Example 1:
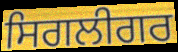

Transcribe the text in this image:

ਸਿਗਲੀਗਰ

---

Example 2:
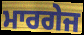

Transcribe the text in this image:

ਮਾਰਗੇਜ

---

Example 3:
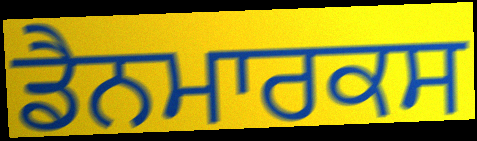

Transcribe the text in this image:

ਡੈਨਮਾਰਕਸ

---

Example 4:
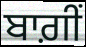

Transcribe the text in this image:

ਬਾਗ਼ੀਂ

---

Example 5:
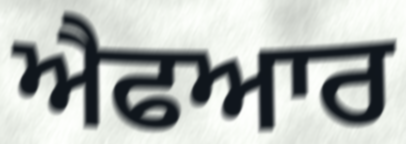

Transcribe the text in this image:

ਐਫਆਰ